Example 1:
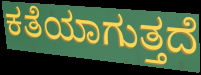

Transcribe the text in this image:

ಕತೆಯಾಗುತ್ತದೆ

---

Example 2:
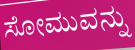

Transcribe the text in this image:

ಸೋಮುವನ್ನು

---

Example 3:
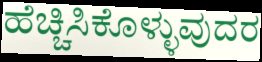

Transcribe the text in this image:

ಹೆಚ್ಚಿಸಿಕೊಳ್ಳುವುದರ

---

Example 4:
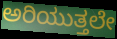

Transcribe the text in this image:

ಅರಿಯುತ್ತಲೇ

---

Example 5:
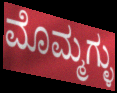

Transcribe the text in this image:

ಮೊಮ್ಮಗ್ಳು